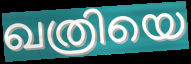
ഖത്രിയെ